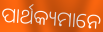
ପାର୍ଥକ୍ୟମାନେ